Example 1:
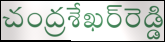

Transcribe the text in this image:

చంద్రశేఖర్‌రెడ్డి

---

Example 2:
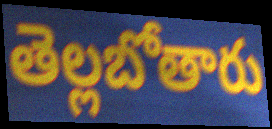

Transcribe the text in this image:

తెల్లబోతారు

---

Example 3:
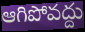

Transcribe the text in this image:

ఆగిపోవద్దు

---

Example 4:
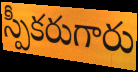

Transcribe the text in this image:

స్పీకరుగారు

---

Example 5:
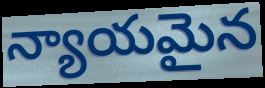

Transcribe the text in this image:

న్యాయమైన